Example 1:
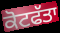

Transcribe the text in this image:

ਕੋਟਫੱਤਾ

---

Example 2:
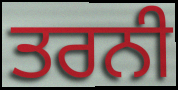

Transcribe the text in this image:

ਤਰਨੀ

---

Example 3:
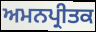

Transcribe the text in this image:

ਅਮਨਪ੍ਰੀਤਕ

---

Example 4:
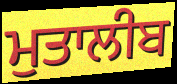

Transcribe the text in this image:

ਮੁਤਾਲੀਬ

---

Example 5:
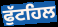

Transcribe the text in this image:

ਫੁੱਟਹਿਲ